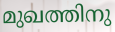
മുഖത്തിനു